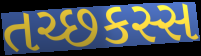
તચ્છકસ્સ